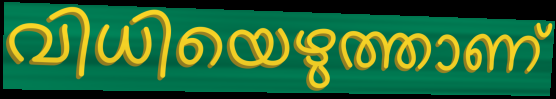
വിധിയെഴുത്താണ്